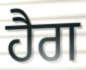
ਹੈਗ